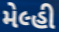
મેલ્હી